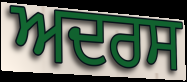
ਅਦਰਸ